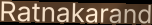
Ratnakarand